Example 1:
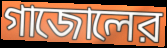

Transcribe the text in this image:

গাজোলের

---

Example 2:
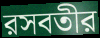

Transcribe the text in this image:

রসবতীর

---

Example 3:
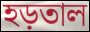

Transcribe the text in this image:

হড়তাল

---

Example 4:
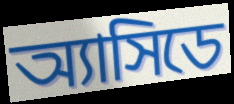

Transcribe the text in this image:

অ্যাসিডে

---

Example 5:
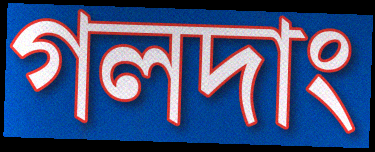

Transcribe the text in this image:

গলদাং